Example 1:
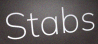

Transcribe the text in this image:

Stabs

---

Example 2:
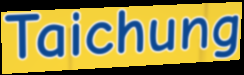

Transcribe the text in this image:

Taichung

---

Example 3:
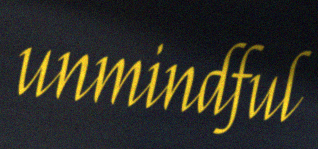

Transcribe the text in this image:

unmindful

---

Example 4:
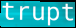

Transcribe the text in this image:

trupt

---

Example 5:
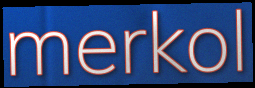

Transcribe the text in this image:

merkol